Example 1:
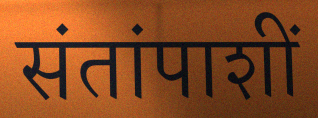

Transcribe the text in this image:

संतांपाशीं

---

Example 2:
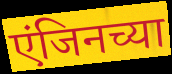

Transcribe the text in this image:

एंजिनच्या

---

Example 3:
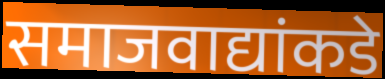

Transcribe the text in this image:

समाजवाद्यांकडे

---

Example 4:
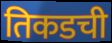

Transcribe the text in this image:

तिकडची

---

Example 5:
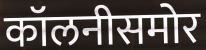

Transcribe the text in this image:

कॉलनीसमोर